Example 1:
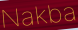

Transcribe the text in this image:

Nakba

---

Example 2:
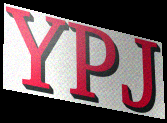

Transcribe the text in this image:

YPJ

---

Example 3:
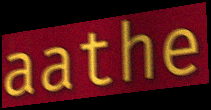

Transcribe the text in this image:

aathe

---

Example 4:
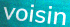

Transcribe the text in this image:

voisin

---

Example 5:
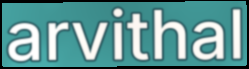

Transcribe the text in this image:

arvithal